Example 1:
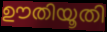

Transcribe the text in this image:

ഊതിയൂതി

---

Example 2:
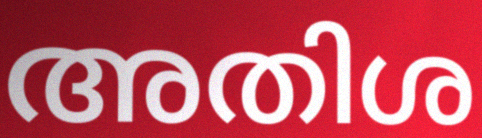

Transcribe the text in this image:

അതിശ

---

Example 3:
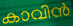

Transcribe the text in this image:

കാവിൻ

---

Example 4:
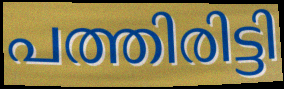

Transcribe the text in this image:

പത്തിരിട്ടി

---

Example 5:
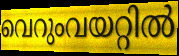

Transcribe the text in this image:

വെറുംവയറ്റിൽ